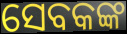
ସେବକଙ୍କ